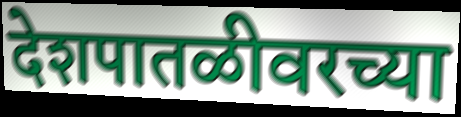
देशपातळीवरच्या